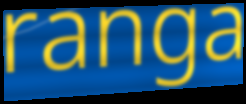
ranga